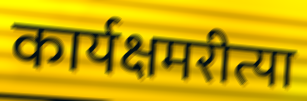
कार्यक्षमरीत्या